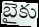
బైకు